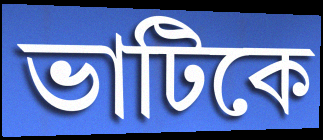
ভাটিকে